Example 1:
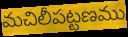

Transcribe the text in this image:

మచిలీపట్టణము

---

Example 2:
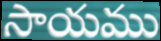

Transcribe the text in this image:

సాయము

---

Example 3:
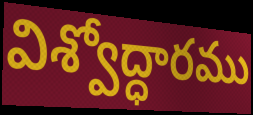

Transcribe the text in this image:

విశ్వోద్ధారము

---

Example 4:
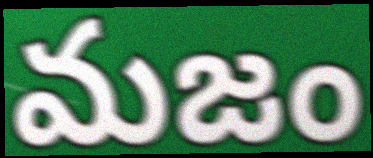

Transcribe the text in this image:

మజం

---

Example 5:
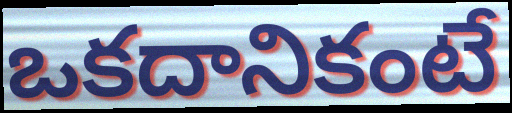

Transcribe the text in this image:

ఒకదానికంటే